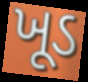
ખૂડ